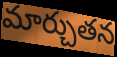
మార్చుతన